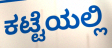
ಕಟ್ಟೆಯಲ್ಲಿ